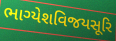
ભાગ્યેશવિજયસૂરિ